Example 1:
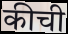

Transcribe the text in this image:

कीची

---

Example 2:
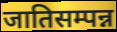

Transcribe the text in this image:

जातिसम्पन्न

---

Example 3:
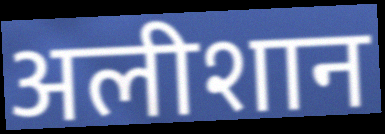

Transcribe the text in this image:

अलीशान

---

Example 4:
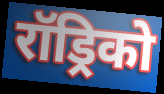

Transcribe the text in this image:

रॉड्रिको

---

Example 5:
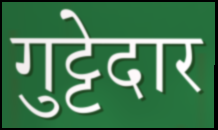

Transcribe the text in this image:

गुट्टेदार